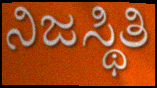
ನಿಜಸ್ಥಿತಿ